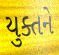
યુક્તને